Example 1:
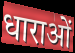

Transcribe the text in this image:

धाराओं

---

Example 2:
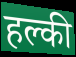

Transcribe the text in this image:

हल्की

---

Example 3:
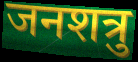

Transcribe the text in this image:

जनशत्रु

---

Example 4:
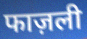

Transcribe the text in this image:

फाज़ली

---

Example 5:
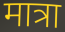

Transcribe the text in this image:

मात्रा